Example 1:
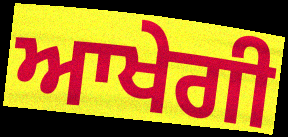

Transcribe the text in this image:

ਆਖੇਗੀ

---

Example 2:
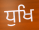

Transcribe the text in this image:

ਧੁਖਿ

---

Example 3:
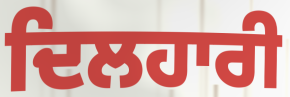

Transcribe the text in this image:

ਦਿਲਹਾਰੀ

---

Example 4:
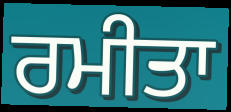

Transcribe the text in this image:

ਰਮੀਤਾ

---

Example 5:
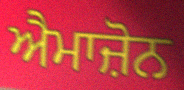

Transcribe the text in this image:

ਐਮਾਜ਼ੋਨ